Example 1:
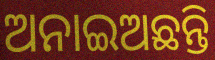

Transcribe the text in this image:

ଅନାଇଅଛନ୍ତି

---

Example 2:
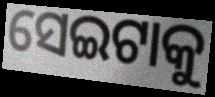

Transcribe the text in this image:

ସେଇଟାକୁ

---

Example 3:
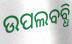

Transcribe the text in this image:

ଉପଲବବ୍ଧି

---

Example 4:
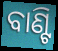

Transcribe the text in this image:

ବାଣ୍ଟି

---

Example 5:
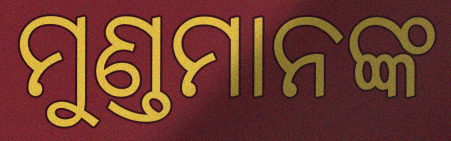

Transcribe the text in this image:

ମୁଣ୍ଡମାନଙ୍କ